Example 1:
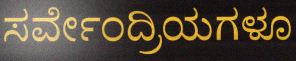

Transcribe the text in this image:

ಸರ್ವೇಂದ್ರಿಯಗಳೂ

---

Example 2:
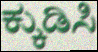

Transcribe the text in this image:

ಕ್ಕುಡಿಸಿ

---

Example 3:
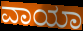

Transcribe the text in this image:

ವಾಯಾ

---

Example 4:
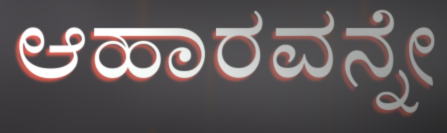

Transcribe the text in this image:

ಆಹಾರವನ್ನೇ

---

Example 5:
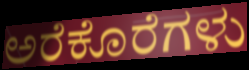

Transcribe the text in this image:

ಅರೆಕೊರೆಗಳು